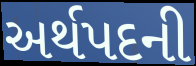
અર્થપદની